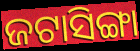
ଜଟାସିଙ୍ଗା